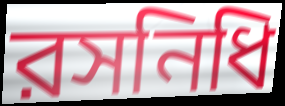
রসনিধি